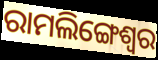
ରାମଲିଙ୍ଗେଶ୍ୱର